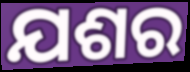
ଯଶର